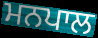
ਮਨਪਾਲ